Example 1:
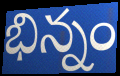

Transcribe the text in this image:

భిన్నం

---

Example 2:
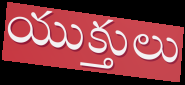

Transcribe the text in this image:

యుక్తులు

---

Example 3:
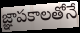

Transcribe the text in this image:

జ్ఞాపకాలతోనే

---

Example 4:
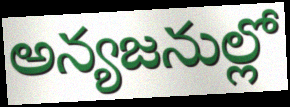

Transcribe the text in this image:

అన్యజనుల్లో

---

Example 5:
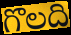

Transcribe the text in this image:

గొలది